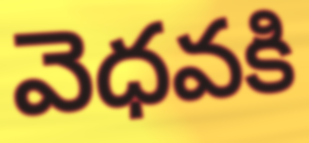
వెధవకి